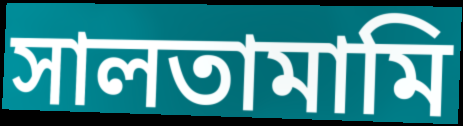
সালতামামি